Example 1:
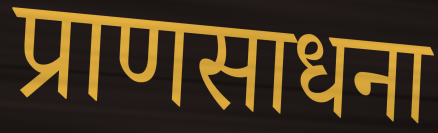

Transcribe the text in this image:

प्राणसाधना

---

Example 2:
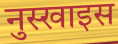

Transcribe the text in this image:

नुस्खाइस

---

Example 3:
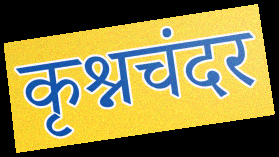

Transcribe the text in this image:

कृश्नचंदर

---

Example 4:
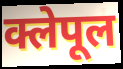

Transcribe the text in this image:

क्लेपूल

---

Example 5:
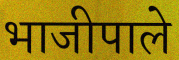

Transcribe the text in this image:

भाजीपाले